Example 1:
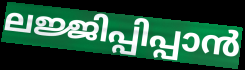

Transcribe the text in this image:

ലജ്ജിപ്പിപ്പാൻ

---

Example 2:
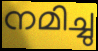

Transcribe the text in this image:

നമിച്ചു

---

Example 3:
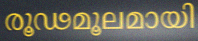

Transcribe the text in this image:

രൂഢമൂലമായി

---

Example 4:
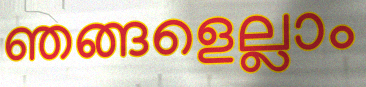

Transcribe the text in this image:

ഞങ്ങളെല്ലാം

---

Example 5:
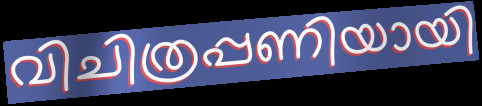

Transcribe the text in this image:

വിചിത്രപ്പണിയായി